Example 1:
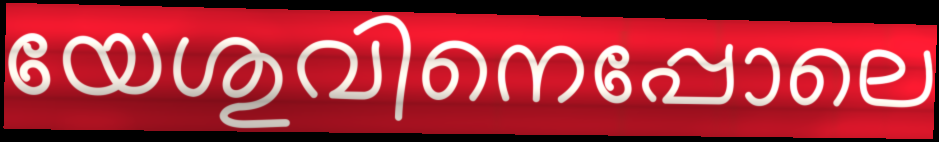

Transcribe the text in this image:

യേശുവിനെപ്പോലെ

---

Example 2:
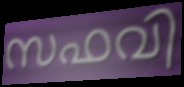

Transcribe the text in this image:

സഫവി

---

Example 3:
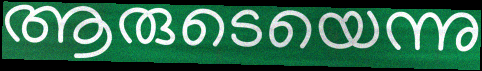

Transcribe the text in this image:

ആരുടെയെന്നു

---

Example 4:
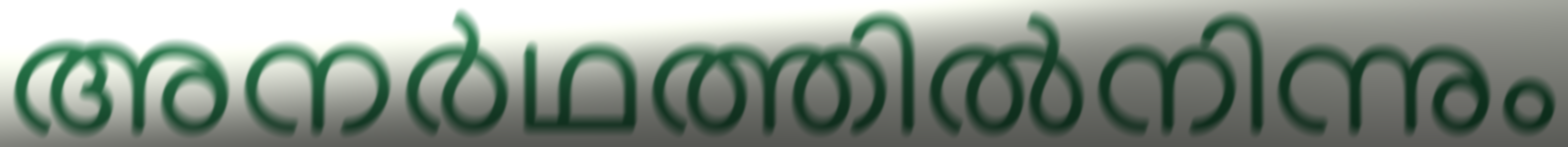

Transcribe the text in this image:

അനർഥത്തിൽനിന്നും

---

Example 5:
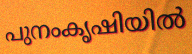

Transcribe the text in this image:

പുനംകൃഷിയിൽ